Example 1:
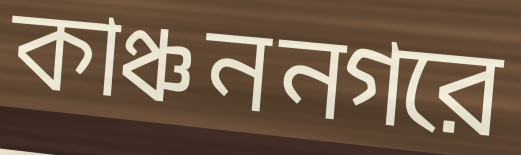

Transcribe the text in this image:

কাঞ্চননগরে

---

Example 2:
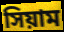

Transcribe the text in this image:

সিয়াম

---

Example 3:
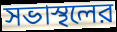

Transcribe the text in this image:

সভাস্থলের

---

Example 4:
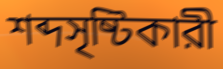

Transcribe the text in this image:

শব্দসৃষ্টিকারী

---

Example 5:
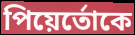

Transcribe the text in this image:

পিয়ের্তোকে